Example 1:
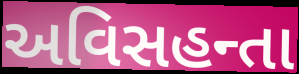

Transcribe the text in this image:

અવિસહન્તા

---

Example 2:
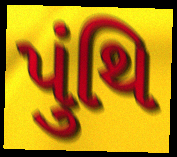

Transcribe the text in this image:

પુંથિ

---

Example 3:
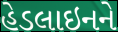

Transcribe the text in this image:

હેડલાઇનને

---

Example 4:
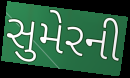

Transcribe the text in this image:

સુમેરની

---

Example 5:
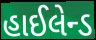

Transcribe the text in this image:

હાઈલેન્ડ